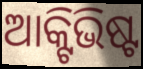
ଆକ୍ଟିଭିଷ୍ଟ